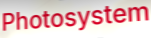
Photosystem